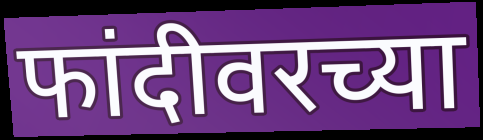
फांदीवरच्या